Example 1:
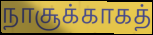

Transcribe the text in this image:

நாசூக்காகத்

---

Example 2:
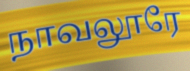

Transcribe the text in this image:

நாவலூரே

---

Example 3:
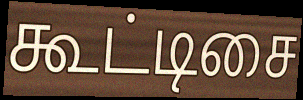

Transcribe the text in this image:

கூட்டிசை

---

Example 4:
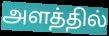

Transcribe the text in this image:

அளத்தில்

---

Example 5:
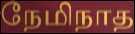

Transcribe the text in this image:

நேமிநாத